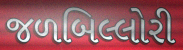
જળબિલ્લોરી